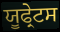
ਯੂਫ੍ਰੇਟਸ